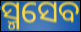
ସ୍ମସେବ